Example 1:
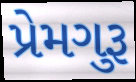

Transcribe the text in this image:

પ્રેમગુરૂ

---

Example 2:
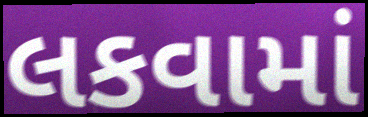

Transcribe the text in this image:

લકવામાં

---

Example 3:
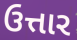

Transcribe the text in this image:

ઉત્તાર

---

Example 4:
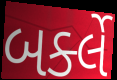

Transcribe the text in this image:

બર્ક્લે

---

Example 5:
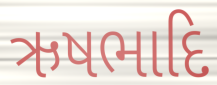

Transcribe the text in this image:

ઋષભાદિ